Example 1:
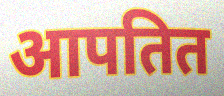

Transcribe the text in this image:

आपतित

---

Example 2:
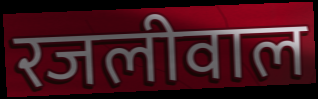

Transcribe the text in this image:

रजलीवाल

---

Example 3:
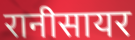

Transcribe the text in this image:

रानीसायर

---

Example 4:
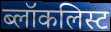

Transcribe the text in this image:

ब्लॉकलिस्ट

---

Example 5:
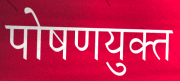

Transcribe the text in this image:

पोषणयुक्‍त